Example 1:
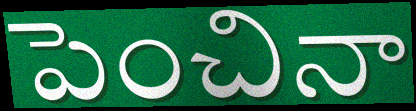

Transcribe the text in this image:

పెంచినా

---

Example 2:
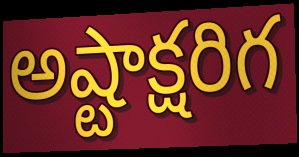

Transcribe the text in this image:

అష్టాక్షరిగ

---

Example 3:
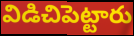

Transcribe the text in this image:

విడిచిపెట్టారు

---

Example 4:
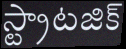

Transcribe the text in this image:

స్ట్రాటజిక్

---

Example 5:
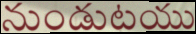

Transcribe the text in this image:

నుండుటయు